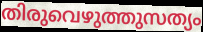
തിരുവെഴുത്തുസത്യം